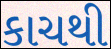
કાચથી